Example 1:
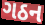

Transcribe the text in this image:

ગઠન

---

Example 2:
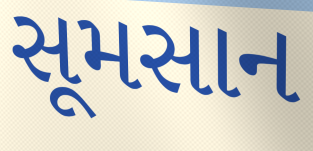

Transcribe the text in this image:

સૂમસાન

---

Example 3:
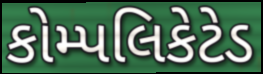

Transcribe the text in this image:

કોમ્પલિકેટેડ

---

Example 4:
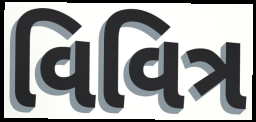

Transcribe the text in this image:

વિવિત્ર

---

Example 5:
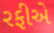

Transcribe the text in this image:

રફીએ